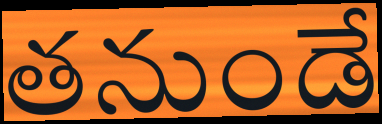
తనుండే